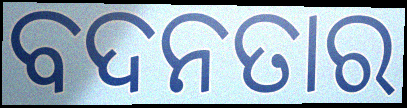
ବଦନତାର